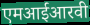
एमआईआरवी